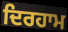
ਦਿਰਹਾਮ